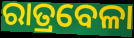
ରାତ୍ରବେଳା